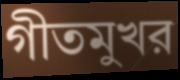
গীতমুখর